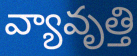
వ్యావృత్తి